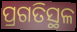
ପ୍ରଗତିସ୍ଥଳ